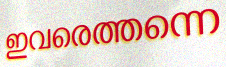
ഇവരെത്തന്നെ